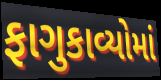
ફાગુકાવ્યોમાં